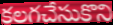
కలగచేసుకొని